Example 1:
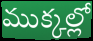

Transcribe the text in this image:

ముక్కల్లో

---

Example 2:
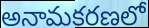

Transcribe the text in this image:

అనామకరణలో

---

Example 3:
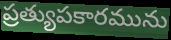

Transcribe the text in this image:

ప్రత్యుపకారమును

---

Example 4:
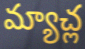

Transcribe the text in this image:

మ్యాచ్ల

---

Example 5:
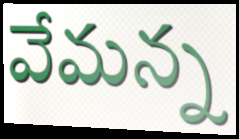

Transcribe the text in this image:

వేమన్న